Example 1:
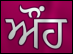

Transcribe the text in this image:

ਔਂਹ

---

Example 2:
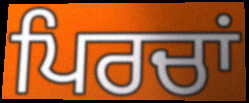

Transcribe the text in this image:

ਪਿਰਚਾਂ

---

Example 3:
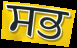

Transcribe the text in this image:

ਸਭ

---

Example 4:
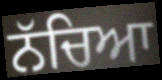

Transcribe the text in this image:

ਨੱਚਿਆ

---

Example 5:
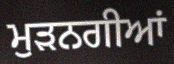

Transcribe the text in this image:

ਮੁੜਨਗੀਆਂ